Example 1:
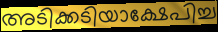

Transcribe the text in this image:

അടിക്കടിയാക്ഷേപിച്ച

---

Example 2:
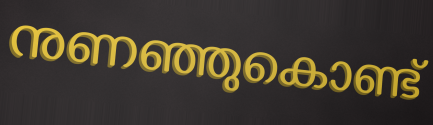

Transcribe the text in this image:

നുണഞ്ഞുകൊണ്ട്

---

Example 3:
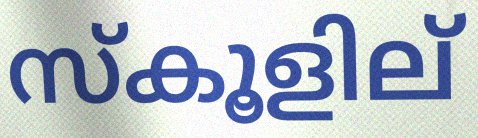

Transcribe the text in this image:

സ്കൂളില്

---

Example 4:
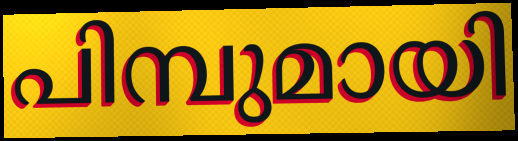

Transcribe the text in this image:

പിമ്പുമായി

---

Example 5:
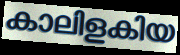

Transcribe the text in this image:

കാലിളകിയ